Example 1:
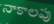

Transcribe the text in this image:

నాకాలపు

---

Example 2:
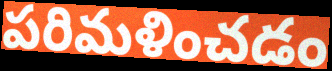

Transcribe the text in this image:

పరిమళించడం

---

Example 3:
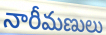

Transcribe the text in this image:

నారీమణులు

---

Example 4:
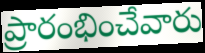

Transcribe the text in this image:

ప్రారంభించేవారు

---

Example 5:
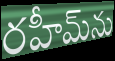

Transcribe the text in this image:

రహీమ్‌ను